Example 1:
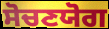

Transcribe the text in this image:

ਸੋਚਣਯੋਗ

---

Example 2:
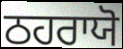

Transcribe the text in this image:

ਠਹਰਾਯੋ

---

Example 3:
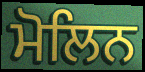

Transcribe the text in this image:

ਮੋਲਿਨ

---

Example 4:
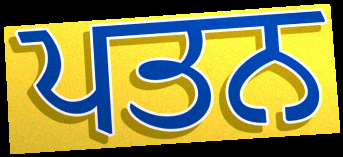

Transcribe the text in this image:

ਪਤਨ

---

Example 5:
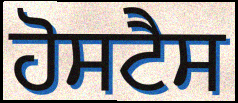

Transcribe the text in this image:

ਹੋਸਟੈਸ